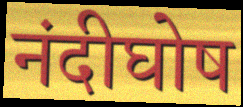
नंदीघोष